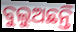
ବୁଲୁଅଛନ୍ତି